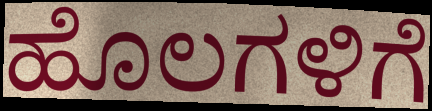
ಹೊಲಗಳಿಗೆ